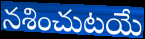
నశించుటయే